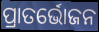
ପ୍ରାତର୍ଭୋଜନ